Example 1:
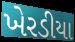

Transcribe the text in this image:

ખેરડીયા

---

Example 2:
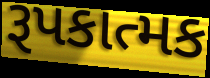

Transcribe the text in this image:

રૂપકાત્મક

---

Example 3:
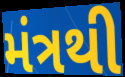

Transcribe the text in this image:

મંત્રથી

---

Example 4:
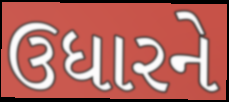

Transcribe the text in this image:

ઉધારને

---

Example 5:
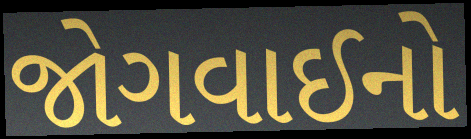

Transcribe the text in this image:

જોગવાઈનો